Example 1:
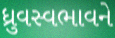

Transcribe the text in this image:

ધ્રુવસ્વભાવને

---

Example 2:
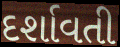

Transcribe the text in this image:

દર્શાવતી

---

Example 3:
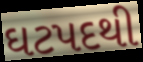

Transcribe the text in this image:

ઘટપદથી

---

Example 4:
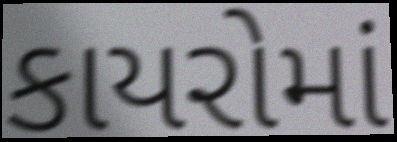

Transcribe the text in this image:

કાયરોમાં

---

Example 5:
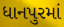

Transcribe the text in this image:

ધાનપુરમાં